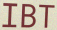
IBT